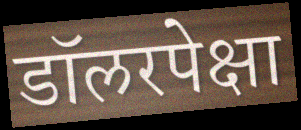
डॉलरपेक्षा